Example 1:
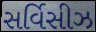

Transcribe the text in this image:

સર્વિસીઝ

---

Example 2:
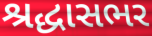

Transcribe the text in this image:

શ્રદ્ધાસભર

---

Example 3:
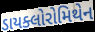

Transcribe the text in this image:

ડાયક્લોરોમિથેન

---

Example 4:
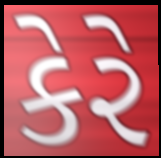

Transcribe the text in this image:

કેરે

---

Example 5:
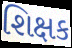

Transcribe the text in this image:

શિક્ષક